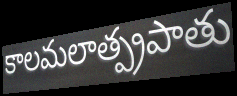
కాలమలాత్ప్రపాతు